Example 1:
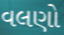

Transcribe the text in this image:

વલણો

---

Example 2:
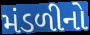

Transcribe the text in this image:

મંડળીનો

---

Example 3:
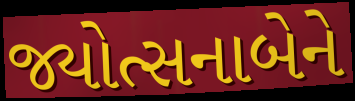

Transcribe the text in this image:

જ્યોત્સનાબેને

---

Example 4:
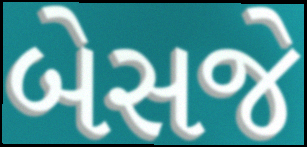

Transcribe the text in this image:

બેસજે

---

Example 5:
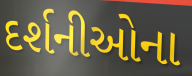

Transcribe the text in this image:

દર્શનીઓના